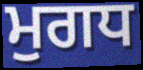
ਮੁਗਧ